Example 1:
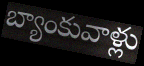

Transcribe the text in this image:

బ్యాంకువాళ్లు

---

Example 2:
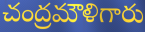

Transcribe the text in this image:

చంద్రమౌళిగారు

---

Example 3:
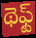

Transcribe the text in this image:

థెఫ్ట్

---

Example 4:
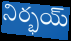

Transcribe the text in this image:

నిర్భయ్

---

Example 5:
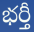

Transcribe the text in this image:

భర్తీ